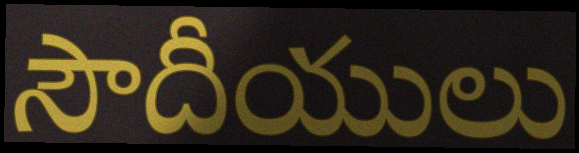
సౌదీయులు